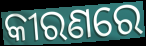
କୀରଣରେ